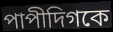
পাপীদিগকে